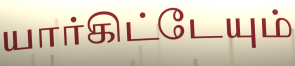
யார்கிட்டேயும்